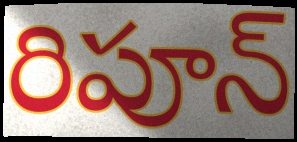
రిపూన్